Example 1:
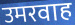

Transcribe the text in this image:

उमरवाह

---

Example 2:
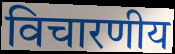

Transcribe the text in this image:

विचारणीय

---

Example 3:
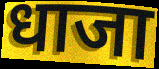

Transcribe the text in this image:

धाजा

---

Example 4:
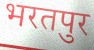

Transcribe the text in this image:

भरतपुर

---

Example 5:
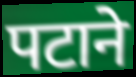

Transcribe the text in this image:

पटाने